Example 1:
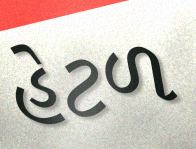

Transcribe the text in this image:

હેટળ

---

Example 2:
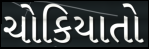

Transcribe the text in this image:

ચોકિયાતો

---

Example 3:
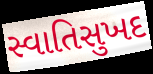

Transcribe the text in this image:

સ્વાતિસુખદ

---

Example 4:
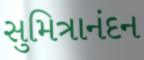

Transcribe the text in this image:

સુમિત્રાનંદન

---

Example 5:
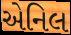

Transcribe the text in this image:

એનિલ